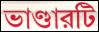
ভাণ্ডারটি